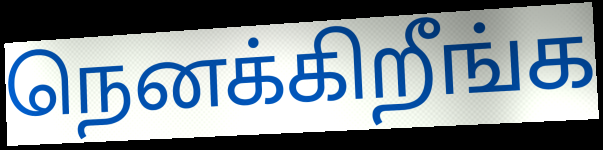
நெனக்கிறீங்க